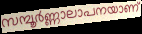
സമ്പൂർണ്ണാലാപനയാണ്